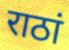
राठां